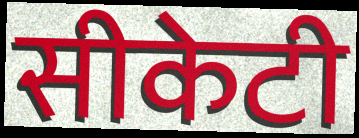
सीकेटी